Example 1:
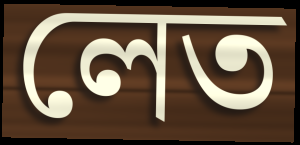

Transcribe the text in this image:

লেত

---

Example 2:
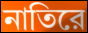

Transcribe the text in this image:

নাতিরে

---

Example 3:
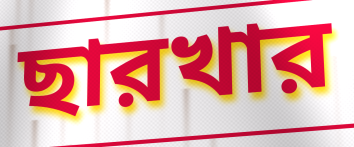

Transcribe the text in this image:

ছারখার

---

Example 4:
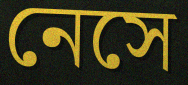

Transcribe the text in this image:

নেসে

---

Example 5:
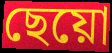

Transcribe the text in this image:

ছেয়ো